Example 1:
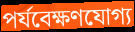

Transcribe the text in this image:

পর্যবেক্ষণযোগ্য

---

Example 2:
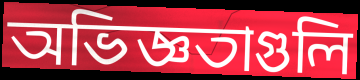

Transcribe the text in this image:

অভিজ্ঞতাগুলি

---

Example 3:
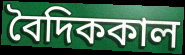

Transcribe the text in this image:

বৈদিককাল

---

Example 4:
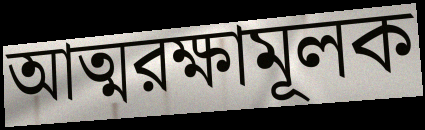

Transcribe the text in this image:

আত্মরক্ষামূলক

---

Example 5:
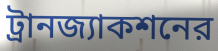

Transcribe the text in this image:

ট্রানজ্যাকশনের